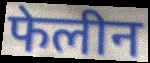
फेलीन